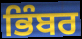
ਭਿੰਬਰ